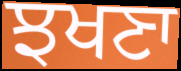
ਝਖਣਾ